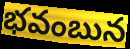
భవంబున